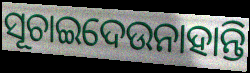
ସୂଚାଇଦେଉନାହାନ୍ତି